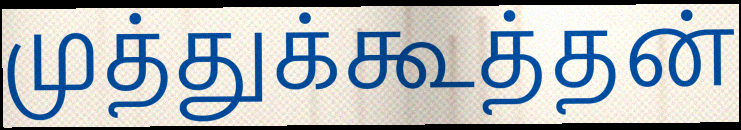
முத்துக்கூத்தன்